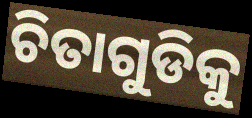
ଚିତାଗୁଡିକୁ